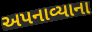
અપનાવ્યાના